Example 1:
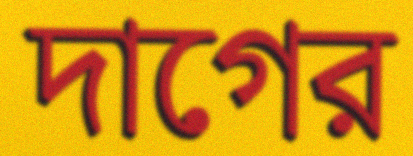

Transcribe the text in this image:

দাগের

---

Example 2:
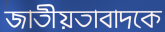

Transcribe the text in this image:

জাতীয়তাবাদকে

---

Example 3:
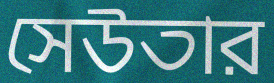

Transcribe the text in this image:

সেউতার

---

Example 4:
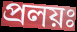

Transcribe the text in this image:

প্রলয়ঃ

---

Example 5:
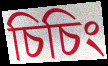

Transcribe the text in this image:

চিচিং